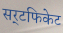
सर्टफिकेट